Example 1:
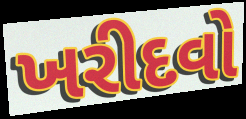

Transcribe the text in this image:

ખરીદવો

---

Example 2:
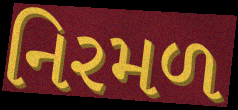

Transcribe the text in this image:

નિરમળ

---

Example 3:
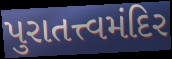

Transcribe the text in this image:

પુરાતત્ત્વમંદિર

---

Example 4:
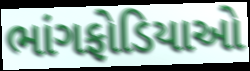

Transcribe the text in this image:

ભાંગફોડિયાઓ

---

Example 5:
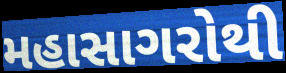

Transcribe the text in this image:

મહાસાગરોથી